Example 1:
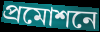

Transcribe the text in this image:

প্রমোশনে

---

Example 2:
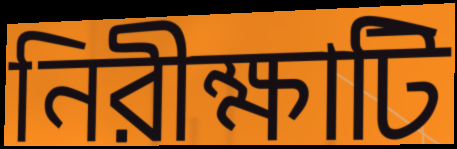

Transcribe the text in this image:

নিরীক্ষাটি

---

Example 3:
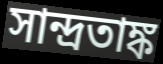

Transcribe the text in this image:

সান্দ্রতাঙ্ক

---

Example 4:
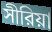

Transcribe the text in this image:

সীরিয়া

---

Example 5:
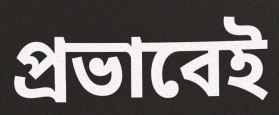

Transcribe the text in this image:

প্রভাবেই